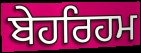
ਬੇਹਰਿਹਮ